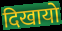
दिखायो